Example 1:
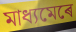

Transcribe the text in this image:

মাধ্যমেৰে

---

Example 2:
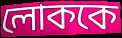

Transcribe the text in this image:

লোককে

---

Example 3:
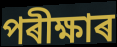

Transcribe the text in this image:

পৰীক্ষাৰ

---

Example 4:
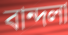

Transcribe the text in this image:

বান্দলা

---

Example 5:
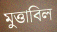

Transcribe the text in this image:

মুত্তাবিল